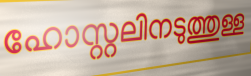
ഹോസ്റ്റലിനടുത്തുള്ള